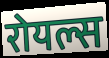
रोयल्स